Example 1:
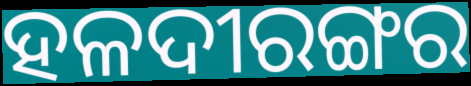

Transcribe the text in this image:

ହଳଦୀରଙ୍ଗର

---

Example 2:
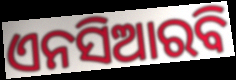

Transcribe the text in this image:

ଏନସିଆରବି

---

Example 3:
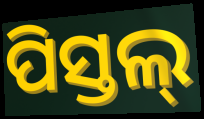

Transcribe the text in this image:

ପିସ୍ତଲ୍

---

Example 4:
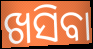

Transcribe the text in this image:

ଖସିବା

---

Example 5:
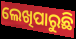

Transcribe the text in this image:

ଲେଖିପାରୁଛି